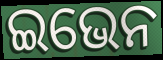
ଇଭେନ